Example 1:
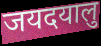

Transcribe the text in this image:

जयदयालु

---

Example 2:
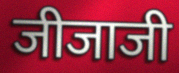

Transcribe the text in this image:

जीजाजी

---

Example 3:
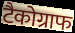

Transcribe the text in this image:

टैकोग्राफ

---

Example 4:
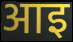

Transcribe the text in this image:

आइ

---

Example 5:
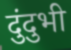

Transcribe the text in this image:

दुंदुभी